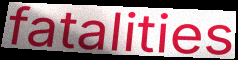
fatalities